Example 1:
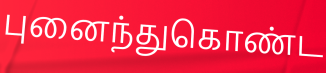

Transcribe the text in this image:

புனைந்துகொண்ட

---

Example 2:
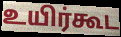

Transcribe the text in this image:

உயிர்கூட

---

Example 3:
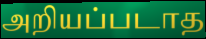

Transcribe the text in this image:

அறியப்படாத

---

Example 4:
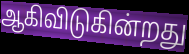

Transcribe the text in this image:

ஆகிவிடுகின்றது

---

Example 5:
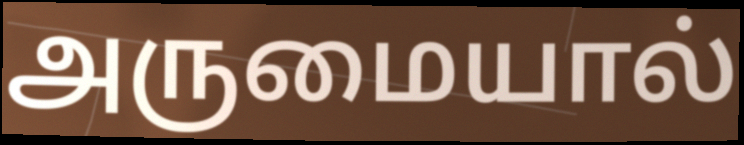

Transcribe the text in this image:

அருமையால்